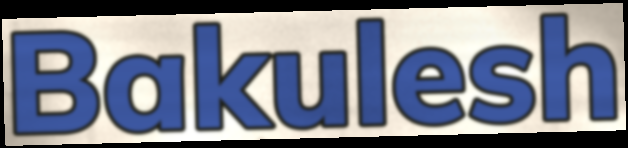
Bakulesh